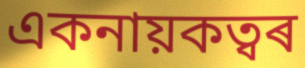
একনায়কত্বৰ